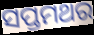
ସପ୍ତମଥର